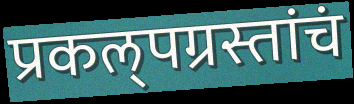
प्रकल्पग्रस्तांचं